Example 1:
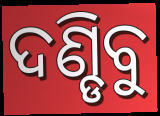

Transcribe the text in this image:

ଦଣ୍ଡିବୁ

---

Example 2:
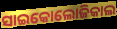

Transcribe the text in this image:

ସାଇକୋଲୋଜିକାଲ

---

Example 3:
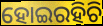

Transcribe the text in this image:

ହୋଇରହିଚି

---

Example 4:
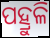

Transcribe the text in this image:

ପହ୍ରୁଳି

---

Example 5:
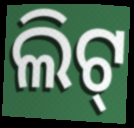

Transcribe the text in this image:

ଲିଟ୍